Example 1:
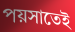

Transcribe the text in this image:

পয়সাতেই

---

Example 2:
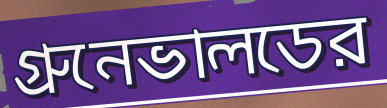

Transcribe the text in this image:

গ্রুনেভালডের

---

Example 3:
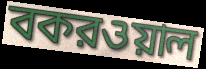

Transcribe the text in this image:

বকরওয়াল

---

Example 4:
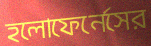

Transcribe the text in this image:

হলোফের্নেসের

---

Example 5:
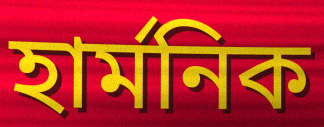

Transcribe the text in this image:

হার্মনিক